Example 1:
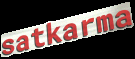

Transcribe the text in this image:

satkarma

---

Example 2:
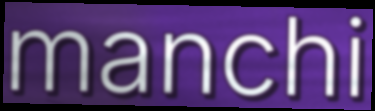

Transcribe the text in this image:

manchi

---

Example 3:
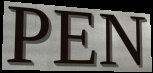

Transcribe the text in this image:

PEN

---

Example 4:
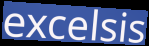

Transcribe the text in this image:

excelsis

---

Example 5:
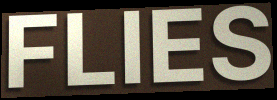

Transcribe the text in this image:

FLIES